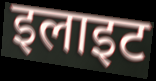
इलाइट